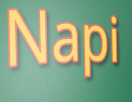
Napi